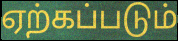
ஏற்கப்படும்